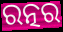
ରତ୍ନର